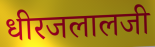
धीरजलालजी